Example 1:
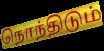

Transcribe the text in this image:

நொந்திடும்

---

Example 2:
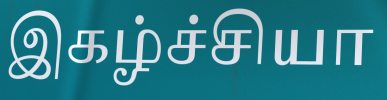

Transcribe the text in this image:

இகழ்ச்சியா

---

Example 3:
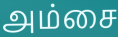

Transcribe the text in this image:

அம்சை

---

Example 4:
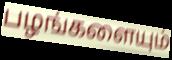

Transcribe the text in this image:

பழங்களையும்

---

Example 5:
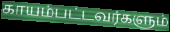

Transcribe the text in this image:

காயம்பட்டவர்களும்